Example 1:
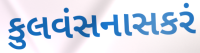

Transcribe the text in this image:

કુલવંસનાસકરં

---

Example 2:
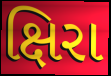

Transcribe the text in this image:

ક્ષિરા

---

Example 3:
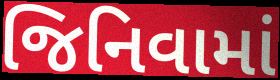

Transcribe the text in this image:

જિનિવામાં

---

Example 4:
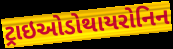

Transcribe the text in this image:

ટ્રાઇઓડોથાયરોનિન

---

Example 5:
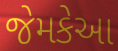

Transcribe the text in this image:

જેમકેઆ